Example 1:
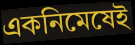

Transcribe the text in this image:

একনিমেষেই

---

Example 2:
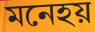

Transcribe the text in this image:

মনেহয়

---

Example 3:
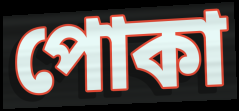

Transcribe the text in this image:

পোকা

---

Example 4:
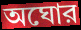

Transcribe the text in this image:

অঘোর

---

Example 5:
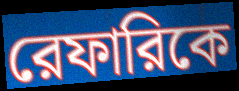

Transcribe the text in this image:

রেফারিকে